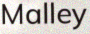
Malley